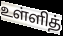
உள்ளித்